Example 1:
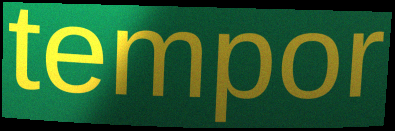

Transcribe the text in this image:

tempor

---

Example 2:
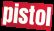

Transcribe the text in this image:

pistol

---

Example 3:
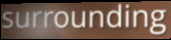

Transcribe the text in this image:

surrounding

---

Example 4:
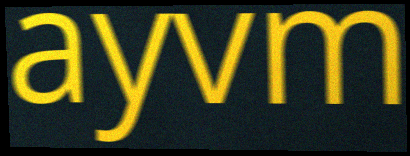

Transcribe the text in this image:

ayvm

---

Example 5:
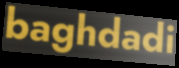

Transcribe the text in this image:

baghdadi